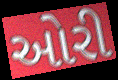
ઓરી